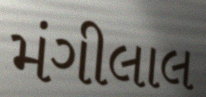
મંગીલાલ